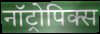
नॉट्रोपिक्स